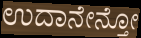
ಉದಾನೇನ್ತೋ